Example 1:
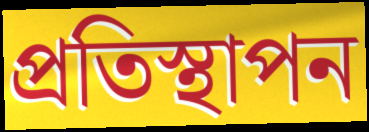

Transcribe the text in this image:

প্রতিস্থাপন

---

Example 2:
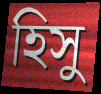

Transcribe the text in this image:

হিসু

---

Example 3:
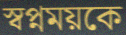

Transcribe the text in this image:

স্বপ্নময়কে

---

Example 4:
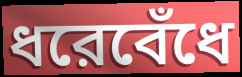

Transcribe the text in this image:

ধরেবেঁধে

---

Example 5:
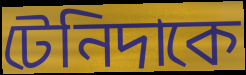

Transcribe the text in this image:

টেনিদাকে